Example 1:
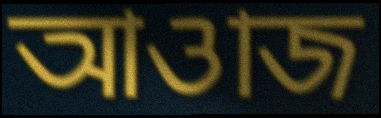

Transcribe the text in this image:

আওাজ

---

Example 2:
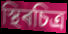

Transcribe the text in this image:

স্থিৰচিত্ৰ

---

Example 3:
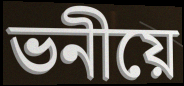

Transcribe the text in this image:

ভনীয়ে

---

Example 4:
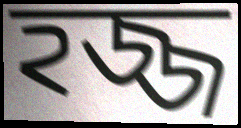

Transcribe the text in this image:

হজ্জ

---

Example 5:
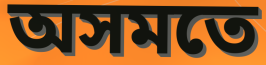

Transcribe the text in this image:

অসমতে